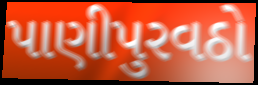
પાણીપુરવઠો